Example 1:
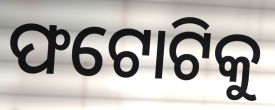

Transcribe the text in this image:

ଫଟୋଟିକୁ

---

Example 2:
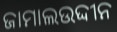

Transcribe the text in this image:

ଜାମାଲଉଦ୍ଦୀନ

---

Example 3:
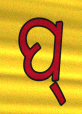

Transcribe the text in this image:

ପ୍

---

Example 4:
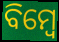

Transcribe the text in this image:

ବିମ୍ବେ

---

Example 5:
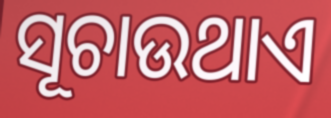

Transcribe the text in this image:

ସୂଚାଉଥାଏ